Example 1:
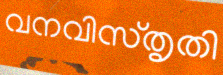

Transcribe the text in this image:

വനവിസ്തൃതി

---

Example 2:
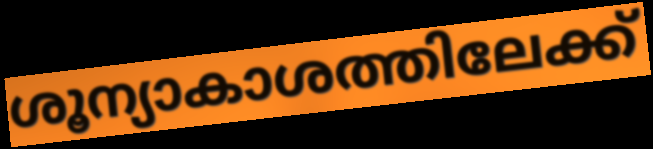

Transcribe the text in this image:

ശൂന്യാകാശത്തിലേക്ക്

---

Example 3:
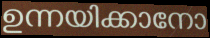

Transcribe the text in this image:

ഉന്നയിക്കാനോ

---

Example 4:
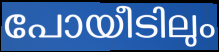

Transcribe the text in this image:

പോയീടിലും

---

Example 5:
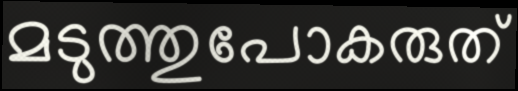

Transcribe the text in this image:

മടുത്തുപോകരുത്